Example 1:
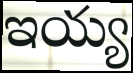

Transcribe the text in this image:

ఇయ్య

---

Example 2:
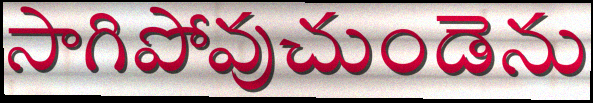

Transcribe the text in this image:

సాగిపోవుచుండెను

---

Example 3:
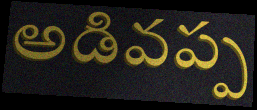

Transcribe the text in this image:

అడివప్ప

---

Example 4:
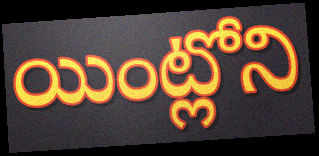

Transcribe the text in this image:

యింట్లోని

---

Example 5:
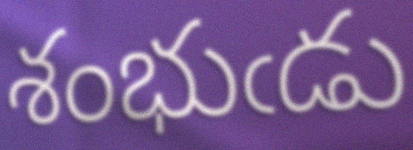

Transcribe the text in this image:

శంభుఁడు